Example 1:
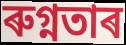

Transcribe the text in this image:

ৰুগ্নতাৰ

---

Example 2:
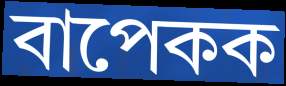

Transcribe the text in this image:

বাপেকক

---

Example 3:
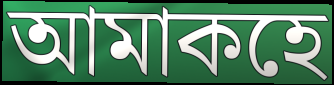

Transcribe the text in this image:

আমাকহে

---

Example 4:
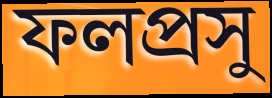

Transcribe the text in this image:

ফলপ্ৰসু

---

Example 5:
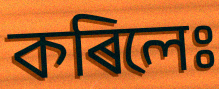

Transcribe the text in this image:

কৰিলেঃ